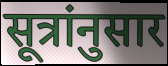
सूत्रांनुसार